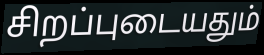
சிறப்புடையதும்